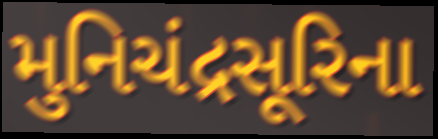
મુનિચંદ્રસૂરિના